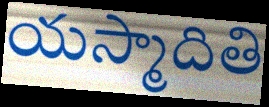
యస్మాదితి